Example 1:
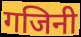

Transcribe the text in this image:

गजिनी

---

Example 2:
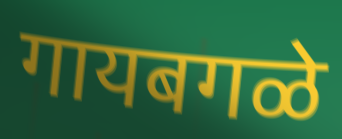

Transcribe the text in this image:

गायबगळे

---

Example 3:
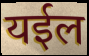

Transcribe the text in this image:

यईल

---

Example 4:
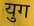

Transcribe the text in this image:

युग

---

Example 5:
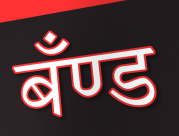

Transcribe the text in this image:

बँण्ड